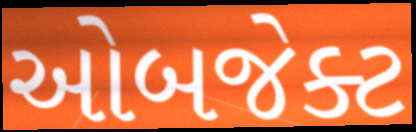
ઓબજેક્ટ